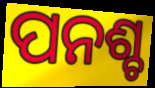
ପନଶ୍ଚ